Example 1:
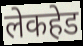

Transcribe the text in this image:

लेकहेड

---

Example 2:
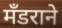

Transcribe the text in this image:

मँडराने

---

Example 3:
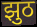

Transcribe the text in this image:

झुठ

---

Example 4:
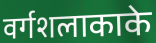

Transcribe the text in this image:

वर्गशलाकाके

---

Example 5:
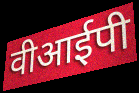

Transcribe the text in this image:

वीआईपी